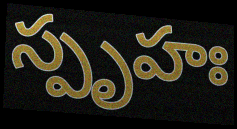
స్పృహః